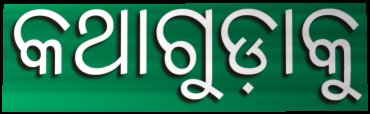
କଥାଗୁଡ଼ାକୁ